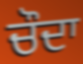
ਚੌਦਾ